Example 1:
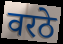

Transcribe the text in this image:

वरठे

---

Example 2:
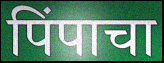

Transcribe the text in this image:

पिंपाचा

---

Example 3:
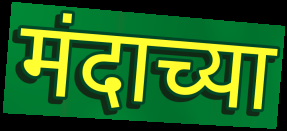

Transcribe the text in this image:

मंदाच्या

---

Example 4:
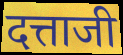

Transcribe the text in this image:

दत्ताजी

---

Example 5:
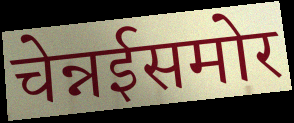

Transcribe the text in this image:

चेन्नईसमोर